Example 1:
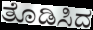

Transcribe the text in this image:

ತೊಡಿಸಿದ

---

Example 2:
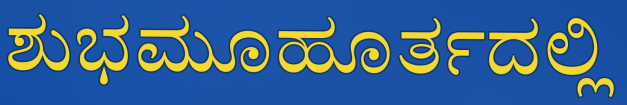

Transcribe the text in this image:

ಶುಭಮೂಹೂರ್ತದಲ್ಲಿ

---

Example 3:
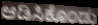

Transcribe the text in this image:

ಆಡಿಸಿಕೊಂಡು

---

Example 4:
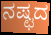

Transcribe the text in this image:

ನಷ್ಟದ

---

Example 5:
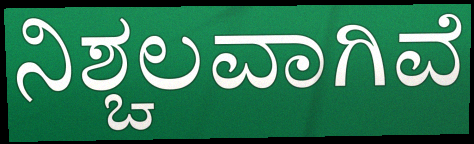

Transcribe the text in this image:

ನಿಶ್ಚಲವಾಗಿವೆ